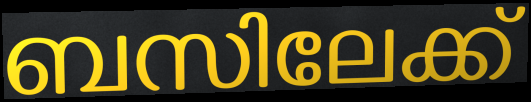
ബസിലേക്ക്